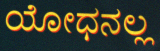
ಯೋಧನಲ್ಲ